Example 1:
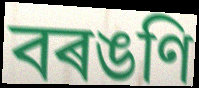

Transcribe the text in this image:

বৰঙণি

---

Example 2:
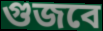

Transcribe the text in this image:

গুজবে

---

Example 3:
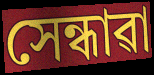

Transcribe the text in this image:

সেন্ধাৱা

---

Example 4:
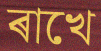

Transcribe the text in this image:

ৰাখে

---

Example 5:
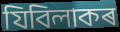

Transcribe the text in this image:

যিবিলাকৰ